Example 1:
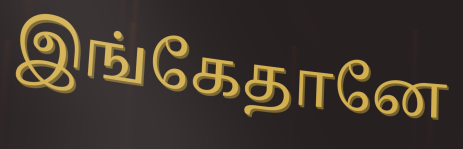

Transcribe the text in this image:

இங்கேதானே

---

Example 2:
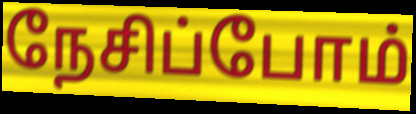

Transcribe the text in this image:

நேசிப்போம்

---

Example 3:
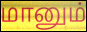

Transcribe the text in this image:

மானும்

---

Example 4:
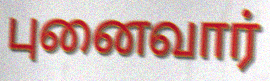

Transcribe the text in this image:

புனைவார்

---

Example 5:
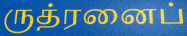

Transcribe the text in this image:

ருத்ரனைப்